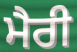
ਮੈਰੀ